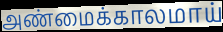
அண்மைக்காலமாய்